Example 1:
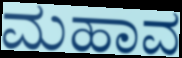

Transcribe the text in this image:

ಮಹಾವ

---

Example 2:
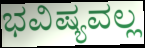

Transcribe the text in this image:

ಭವಿಷ್ಯವಲ್ಲ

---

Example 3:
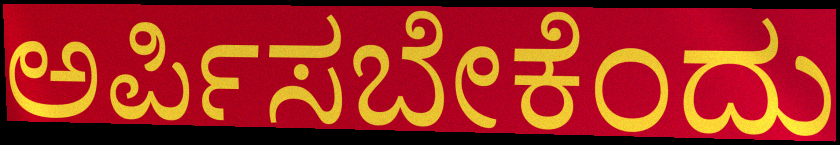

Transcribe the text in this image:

ಅರ್ಪಿಸಬೇಕೆಂದು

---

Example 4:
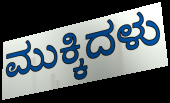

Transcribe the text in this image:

ಮುಕ್ಕಿದಳು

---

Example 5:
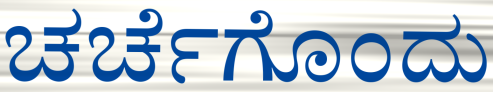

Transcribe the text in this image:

ಚರ್ಚೆಗೊಂದು